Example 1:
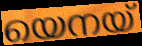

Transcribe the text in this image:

യെനയ്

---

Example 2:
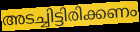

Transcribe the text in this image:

അടച്ചിട്ടിരിക്കണം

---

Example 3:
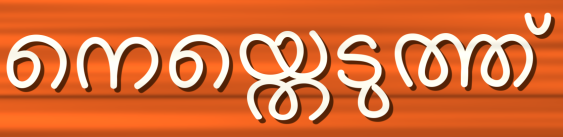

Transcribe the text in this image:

നെയ്തെടുത്ത്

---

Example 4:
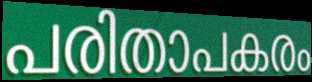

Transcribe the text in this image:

പരിതാപകരം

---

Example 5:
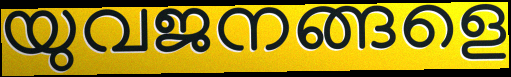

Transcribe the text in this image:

യുവജനങ്ങളെ